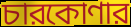
চারকোণার